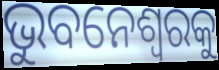
ଭୁବନେଶ୍ୱରକୁ